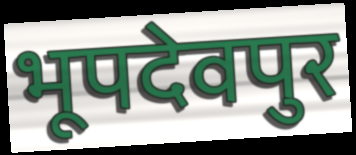
भूपदेवपुर